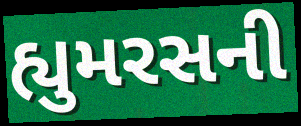
હ્યુમરસની